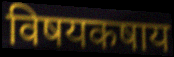
विषयकषाय